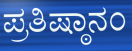
ಪ್ರತಿಷ್ಠಾನಂ